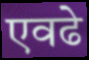
एवढे